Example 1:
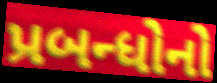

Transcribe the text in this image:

પ્રબન્ધોનો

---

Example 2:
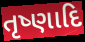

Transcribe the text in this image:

તૃષ્ણાદિ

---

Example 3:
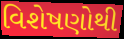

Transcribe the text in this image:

વિશેષણોથી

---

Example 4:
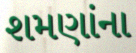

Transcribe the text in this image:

શમણાંના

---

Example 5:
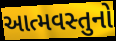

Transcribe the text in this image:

આત્મવસ્તુનો